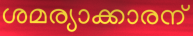
ശമര്യാക്കാരന്